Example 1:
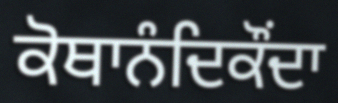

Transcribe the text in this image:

ਕੋਥਾਨੰਦਿਕੌਂਦਾ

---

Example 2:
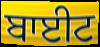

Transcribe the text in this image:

ਬਾਈਟ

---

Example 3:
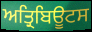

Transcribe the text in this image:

ਅਤ੍ਰਿਬਿਊਟਸ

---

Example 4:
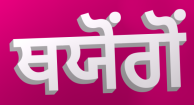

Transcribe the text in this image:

ਥਯੋਂਗੋਂ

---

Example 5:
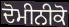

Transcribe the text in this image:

ਦੋਮੀਨੀਕੋ